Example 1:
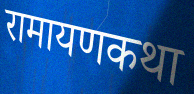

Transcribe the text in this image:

रामायणकथा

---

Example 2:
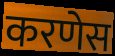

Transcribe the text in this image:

करणेस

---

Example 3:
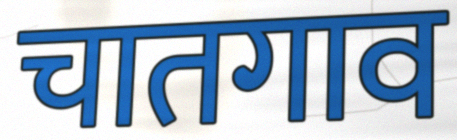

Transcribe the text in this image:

चातगाव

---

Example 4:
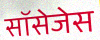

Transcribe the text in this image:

सॉसेजेस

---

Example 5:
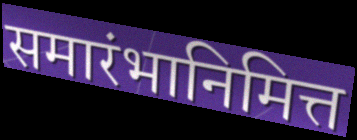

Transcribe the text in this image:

समारंभानिमित्त